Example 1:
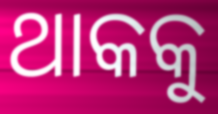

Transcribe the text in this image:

ଥାକକୁ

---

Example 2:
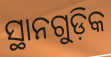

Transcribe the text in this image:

ସ୍ଥାନଗୁଡ଼ିକ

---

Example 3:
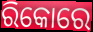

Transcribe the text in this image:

ରିକୋରେ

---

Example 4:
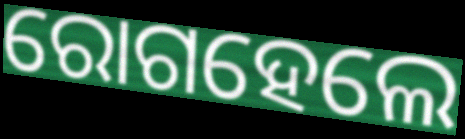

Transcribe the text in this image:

ରୋଗହେଲେ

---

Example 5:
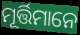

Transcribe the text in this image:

ମୂର୍ତ୍ତିମାନେ